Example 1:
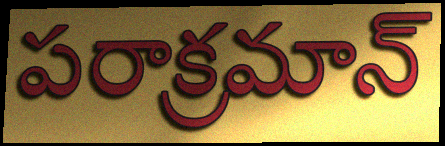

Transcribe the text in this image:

పరాక్రమాన్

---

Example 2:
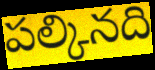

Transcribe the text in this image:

పల్కినది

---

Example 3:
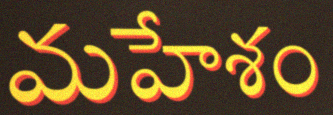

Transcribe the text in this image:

మహేశం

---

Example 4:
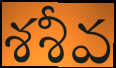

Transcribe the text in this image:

శశీవ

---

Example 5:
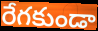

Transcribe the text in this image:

రేగకుండా